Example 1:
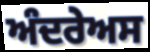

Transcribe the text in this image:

ਅੰਦਰੇਅਸ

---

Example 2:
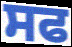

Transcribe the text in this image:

ਸਫ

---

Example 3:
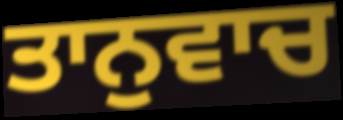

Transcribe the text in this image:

ਤਾਨੁਵਾਚ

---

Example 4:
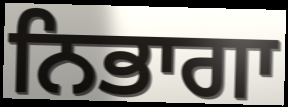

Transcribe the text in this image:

ਨਿਭਾਗਾ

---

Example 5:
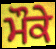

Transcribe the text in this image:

ਮੌਕੇ